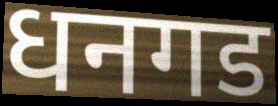
धनगड